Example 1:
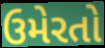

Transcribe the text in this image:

ઉમેરતો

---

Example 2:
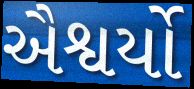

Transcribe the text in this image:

ઐશ્વર્યો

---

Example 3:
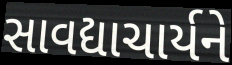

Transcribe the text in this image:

સાવદ્યાચાર્યને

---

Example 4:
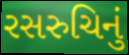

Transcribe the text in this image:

રસરુચિનું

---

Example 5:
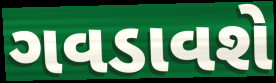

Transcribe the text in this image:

ગવડાવશે